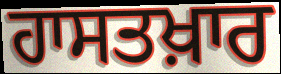
ਹਾਸਤਖ਼ਾਰ